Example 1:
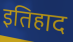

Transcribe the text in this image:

इतिहाद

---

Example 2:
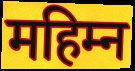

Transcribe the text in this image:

महिम्न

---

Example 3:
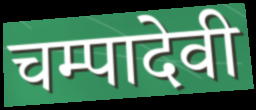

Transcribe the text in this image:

चम्पादेवी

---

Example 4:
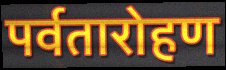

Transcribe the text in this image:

पर्वतारोहण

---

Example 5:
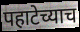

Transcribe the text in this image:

पहाटेच्याच